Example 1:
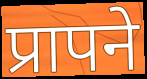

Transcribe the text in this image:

प्रापने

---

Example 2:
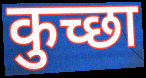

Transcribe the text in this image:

कुच्छा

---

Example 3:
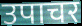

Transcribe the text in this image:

उपाचर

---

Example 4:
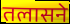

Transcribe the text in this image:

तलासने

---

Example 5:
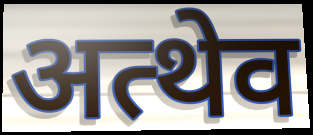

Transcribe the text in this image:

अत्थेव